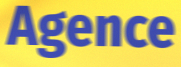
Agence